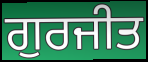
ਗੁਰਜੀਤ